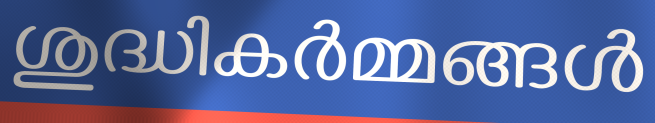
ശുദ്ധികർമ്മങ്ങൾ